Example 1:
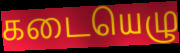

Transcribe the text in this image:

கடையெழு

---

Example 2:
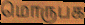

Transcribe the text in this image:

மொருபக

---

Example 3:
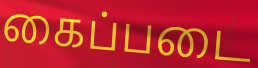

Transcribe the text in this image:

கைப்படை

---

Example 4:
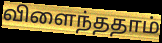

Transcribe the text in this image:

விளைந்ததாம்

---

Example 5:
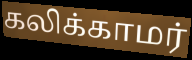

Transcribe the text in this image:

கலிக்காமர்